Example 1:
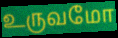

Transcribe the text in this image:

உருவமோ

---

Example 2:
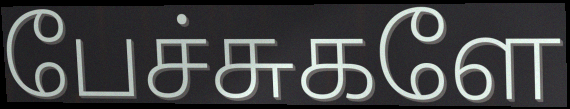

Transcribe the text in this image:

பேச்சுகளே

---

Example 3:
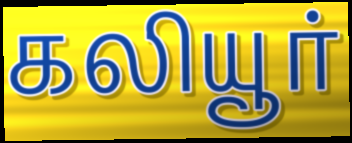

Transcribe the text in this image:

கலியூர்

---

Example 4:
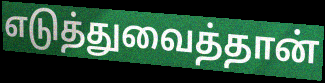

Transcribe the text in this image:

எடுத்துவைத்தான்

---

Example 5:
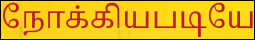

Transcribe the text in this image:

நோக்கியபடியே